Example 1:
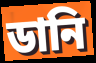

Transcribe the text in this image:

ডানি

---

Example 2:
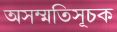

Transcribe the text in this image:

অসম্মতিসূচক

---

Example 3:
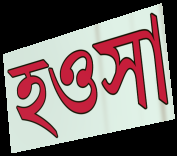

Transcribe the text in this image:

হওসা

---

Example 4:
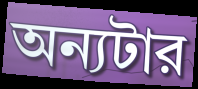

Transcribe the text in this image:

অন্যটার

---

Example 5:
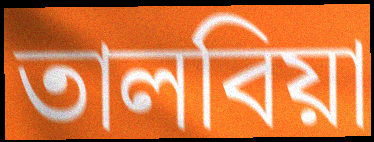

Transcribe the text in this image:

তালবিয়া